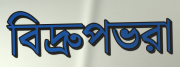
বিদ্রুপভরা